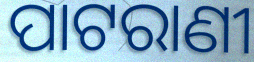
ପାଟରାଣୀ